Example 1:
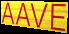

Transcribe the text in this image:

AAVE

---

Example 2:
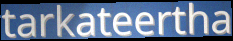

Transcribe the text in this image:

tarkateertha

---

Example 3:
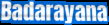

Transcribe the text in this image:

Badarayana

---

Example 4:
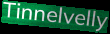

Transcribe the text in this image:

Tinnelvelly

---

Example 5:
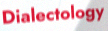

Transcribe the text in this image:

Dialectology